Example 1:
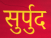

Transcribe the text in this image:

सुर्पुद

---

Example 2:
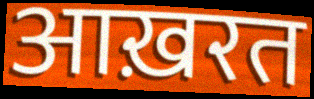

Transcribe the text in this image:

आख़रत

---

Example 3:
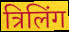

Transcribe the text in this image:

त्रिलिंग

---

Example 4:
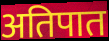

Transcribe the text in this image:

अतिपात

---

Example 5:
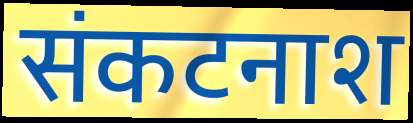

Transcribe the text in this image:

संकटनाश